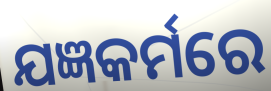
ଯଜ୍ଞକର୍ମରେ